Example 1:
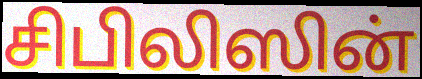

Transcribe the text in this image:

சிபிலிஸின்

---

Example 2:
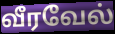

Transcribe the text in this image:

வீரவேல்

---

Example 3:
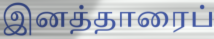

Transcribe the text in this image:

இனத்தாரைப்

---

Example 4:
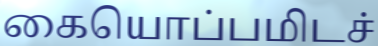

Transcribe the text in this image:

கையொப்பமிடச்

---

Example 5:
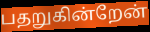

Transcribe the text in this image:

பதறுகின்றேன்